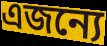
এজন্যে